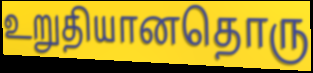
உறுதியானதொரு